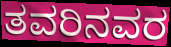
ತವರಿನವರ